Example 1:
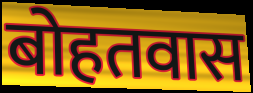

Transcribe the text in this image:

बोहतवास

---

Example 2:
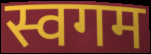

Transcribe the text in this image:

स्वगम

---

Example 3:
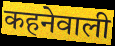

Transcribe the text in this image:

कहनेवाली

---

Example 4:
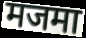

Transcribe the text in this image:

मजमा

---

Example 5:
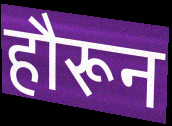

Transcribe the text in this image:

हौरून